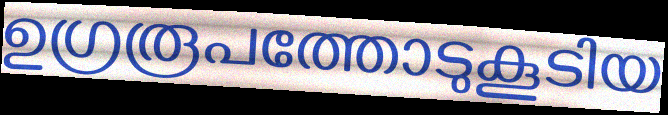
ഉഗ്രരൂപത്തോടുകൂടിയ